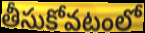
తీసుకోవటంలో